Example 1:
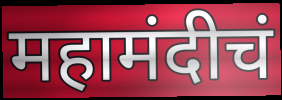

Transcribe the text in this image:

महामंदीचं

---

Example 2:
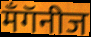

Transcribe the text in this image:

मँगॅनीज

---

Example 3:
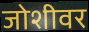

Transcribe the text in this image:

जोशीवर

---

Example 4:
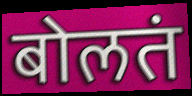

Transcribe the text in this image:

बोलतं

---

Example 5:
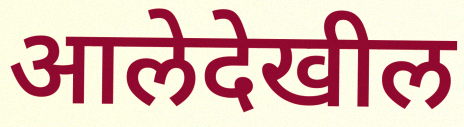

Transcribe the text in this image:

आलेदेखील